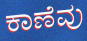
ಕಾಣೆವು